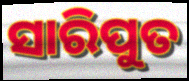
ସାରିପୁତ